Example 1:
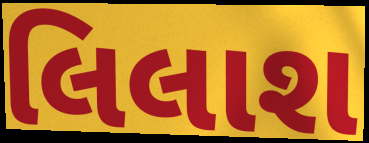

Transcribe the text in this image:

લિલાશ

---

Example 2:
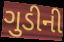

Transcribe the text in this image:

ગુડીની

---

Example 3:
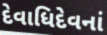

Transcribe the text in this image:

દેવાધિદેવનાં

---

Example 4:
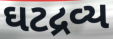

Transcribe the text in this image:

ઘટદ્રવ્ય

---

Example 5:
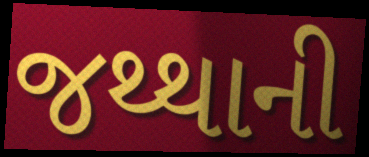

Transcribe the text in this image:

જથ્થાની